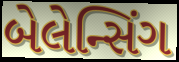
બેલેન્સિંગ